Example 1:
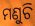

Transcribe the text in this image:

ମଣୁଚି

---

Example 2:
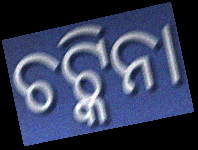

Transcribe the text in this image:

ଚଟ୍କିନା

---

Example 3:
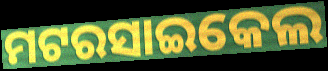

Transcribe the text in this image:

ମଟରସାଇକେଲ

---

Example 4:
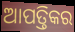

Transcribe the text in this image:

ଆପତ୍ତିକର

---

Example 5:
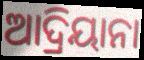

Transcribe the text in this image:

ଆଦ୍ରିୟାନା